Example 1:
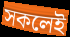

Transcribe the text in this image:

সকলেই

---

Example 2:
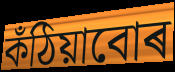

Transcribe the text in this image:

কঁঠিয়াবোৰ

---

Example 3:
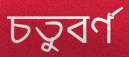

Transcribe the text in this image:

চতুবৰ্ণ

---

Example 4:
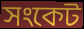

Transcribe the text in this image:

সংকেট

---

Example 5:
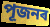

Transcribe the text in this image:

পূজনৰ